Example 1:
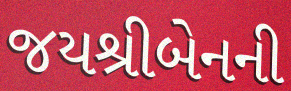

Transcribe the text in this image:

જયશ્રીબેનની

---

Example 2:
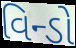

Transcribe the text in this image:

વિન્ડો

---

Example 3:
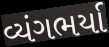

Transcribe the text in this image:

વ્યંગભર્યા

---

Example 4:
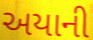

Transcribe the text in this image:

અયાની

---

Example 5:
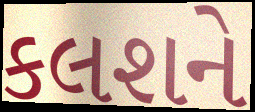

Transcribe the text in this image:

કલશને